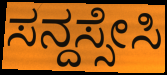
ಸನ್ದಸ್ಸೇಸಿ